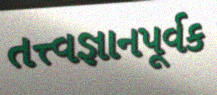
તત્ત્વજ્ઞાનપૂર્વક